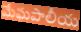
మేఘపాలీయ